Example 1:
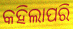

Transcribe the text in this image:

କହିଲାପରି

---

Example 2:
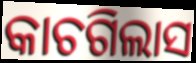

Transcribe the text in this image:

କାଚଗିଲାସ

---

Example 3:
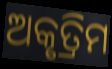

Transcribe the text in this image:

ଅକୃତ୍ରିମ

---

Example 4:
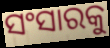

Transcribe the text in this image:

ସଂସାରକୁ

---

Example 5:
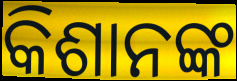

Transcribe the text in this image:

କିଶାନଙ୍କ